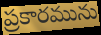
ప్రకారమును